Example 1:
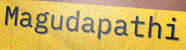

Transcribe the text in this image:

Magudapathi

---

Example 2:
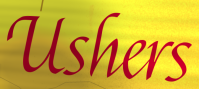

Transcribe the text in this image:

Ushers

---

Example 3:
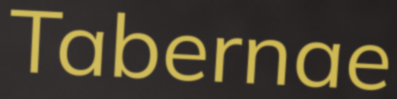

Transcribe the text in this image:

Tabernae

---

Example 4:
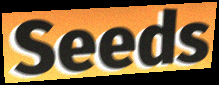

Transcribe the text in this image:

Seeds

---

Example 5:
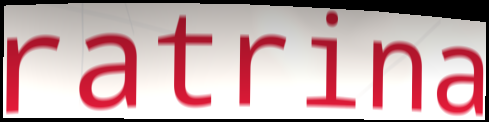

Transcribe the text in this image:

ratrina